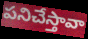
పనిచేస్తావా